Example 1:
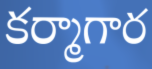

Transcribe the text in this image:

కర్మాగార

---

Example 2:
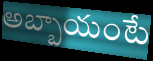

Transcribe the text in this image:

అబ్బాయంటే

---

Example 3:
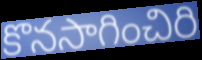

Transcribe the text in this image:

కొనసాగించిరి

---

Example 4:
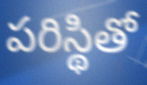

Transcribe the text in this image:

పరిస్థితో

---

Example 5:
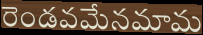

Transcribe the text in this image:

రెండవమేనమామ